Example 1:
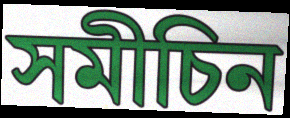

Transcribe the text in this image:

সমীচিন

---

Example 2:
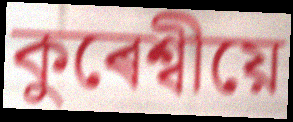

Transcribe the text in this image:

কুৰেশ্বীয়ে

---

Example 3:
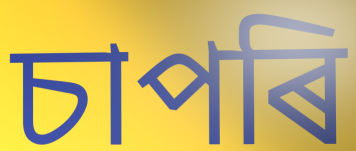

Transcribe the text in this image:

চাপৰি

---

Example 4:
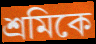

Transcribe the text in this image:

শ্ৰমিকে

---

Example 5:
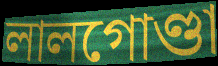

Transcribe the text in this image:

লালগোণ্ডা